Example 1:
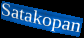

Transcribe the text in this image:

Satakopan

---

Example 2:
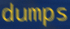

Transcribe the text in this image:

dumps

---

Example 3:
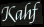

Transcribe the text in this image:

Kahf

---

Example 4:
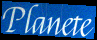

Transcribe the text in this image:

Planete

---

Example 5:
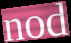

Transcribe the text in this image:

nod